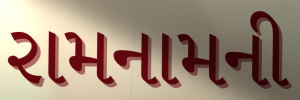
રામનામની